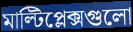
মাল্টিপ্লেক্সগুলো